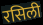
रसिली